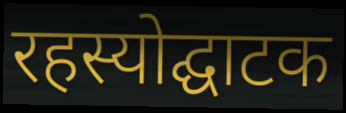
रहस्योद्घाटक